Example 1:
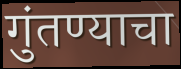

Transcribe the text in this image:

गुंतण्याचा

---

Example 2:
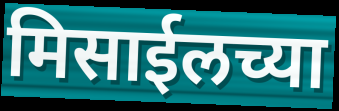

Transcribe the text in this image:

मिसाईलच्या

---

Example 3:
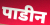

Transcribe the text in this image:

पाडीन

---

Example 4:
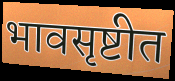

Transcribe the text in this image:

भावसृष्टीत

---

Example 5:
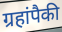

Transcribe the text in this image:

ग्रहांपैकी